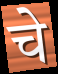
चे